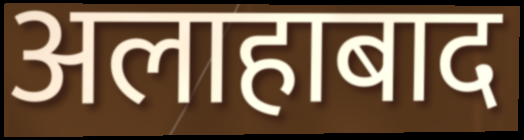
अलाहाबाद